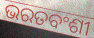
ଭରତବଂଶୀ